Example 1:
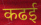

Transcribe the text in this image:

कढई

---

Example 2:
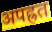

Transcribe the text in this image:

अपह्रत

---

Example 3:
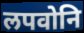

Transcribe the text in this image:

लपवोनि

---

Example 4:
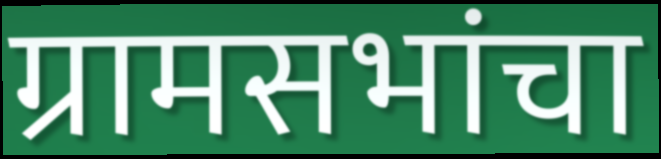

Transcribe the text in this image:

ग्रामसभांचा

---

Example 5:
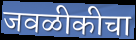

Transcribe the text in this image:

जवळीकीचा